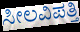
ಸೀಲವಿಪತ್ತಿ